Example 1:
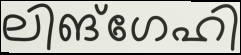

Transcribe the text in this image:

ലിങ്ഗേഹി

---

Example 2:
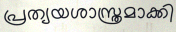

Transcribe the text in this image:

പ്രത്യയശാസ്ത്രമാക്കി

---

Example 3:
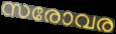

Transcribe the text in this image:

സരോവര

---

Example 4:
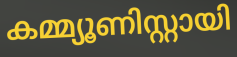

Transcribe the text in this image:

കമ്മ്യൂണിസ്റ്റായി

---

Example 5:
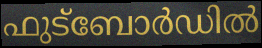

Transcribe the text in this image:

ഫുട്ബോർഡിൽ